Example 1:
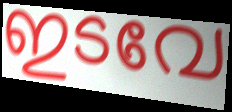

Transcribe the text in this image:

ഇടവേ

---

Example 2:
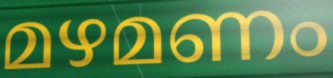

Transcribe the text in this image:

മഴമണം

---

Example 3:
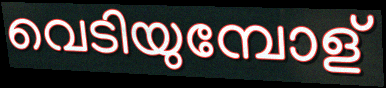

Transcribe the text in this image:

വെടിയുമ്പോള്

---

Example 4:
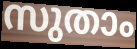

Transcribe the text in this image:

സുതാം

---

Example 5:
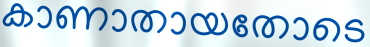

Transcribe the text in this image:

കാണാതായതോടെ